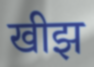
खीझ